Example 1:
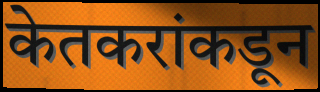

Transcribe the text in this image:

केतकरांकडून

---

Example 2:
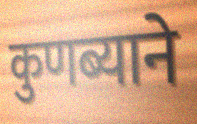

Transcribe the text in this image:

कुणब्याने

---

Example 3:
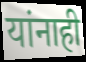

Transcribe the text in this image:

यांनाही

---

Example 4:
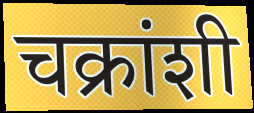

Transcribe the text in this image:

चक्रांशी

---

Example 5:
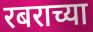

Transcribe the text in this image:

रबराच्या